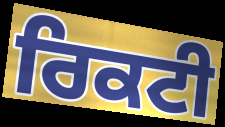
ਰਿਕਟੀ